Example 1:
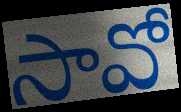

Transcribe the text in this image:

సావో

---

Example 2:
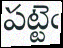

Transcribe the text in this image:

పట్టెఁ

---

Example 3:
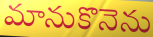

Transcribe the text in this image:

మానుకొనెను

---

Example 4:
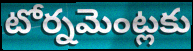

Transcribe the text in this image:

టోర్నమెంట్లకు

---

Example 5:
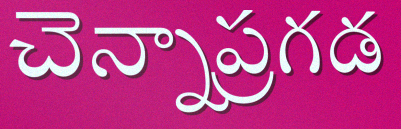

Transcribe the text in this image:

చెన్నాప్రగడ